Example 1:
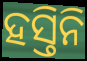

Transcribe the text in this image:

ହସ୍ତିନି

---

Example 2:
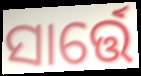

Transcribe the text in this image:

ସାର୍ତ୍ତେ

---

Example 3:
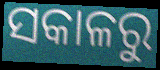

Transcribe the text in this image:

ସକାଳରୁ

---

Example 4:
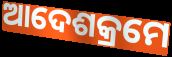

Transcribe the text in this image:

ଆଦେଶକ୍ରମେ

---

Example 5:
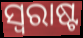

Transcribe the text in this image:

ସ୍ୱରାଷ୍ଟ